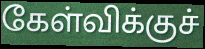
கேள்விக்குச்